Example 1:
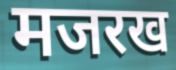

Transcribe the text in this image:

मजरख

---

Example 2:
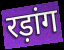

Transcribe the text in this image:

रड़ांग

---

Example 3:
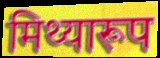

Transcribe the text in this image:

मिथ्यारूप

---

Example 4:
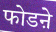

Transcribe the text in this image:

फोडऩे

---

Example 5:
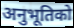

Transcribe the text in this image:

अनुभूतिको